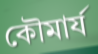
কৌমার্য